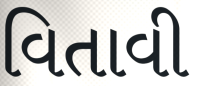
વિતાવી